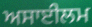
ਅਸਾਈਲਮ